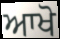
ਆਖੋ